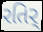
રતિર્